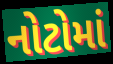
નોટોમાં